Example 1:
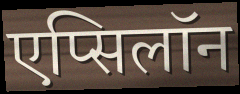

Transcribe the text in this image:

एप्सिलॉन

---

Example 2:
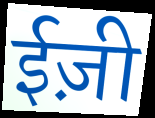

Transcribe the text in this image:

ईज़ी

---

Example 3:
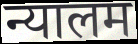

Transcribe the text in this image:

न्यालम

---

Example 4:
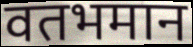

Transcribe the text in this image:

वतभमान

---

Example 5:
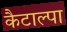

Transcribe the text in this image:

कैटाल्पा